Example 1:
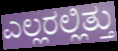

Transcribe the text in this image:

ಎಲ್ಲರಲ್ಲಿತ್ತು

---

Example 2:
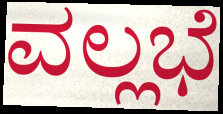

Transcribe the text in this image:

ವಲ್ಲಭೆ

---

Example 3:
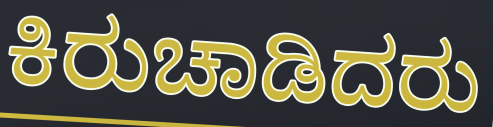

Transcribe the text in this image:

ಕಿರುಚಾಡಿದರು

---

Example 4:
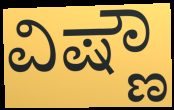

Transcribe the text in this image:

ವಿಷ್ಣೌ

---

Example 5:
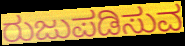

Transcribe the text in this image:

ರುಜುಪಡಿಸುವ